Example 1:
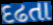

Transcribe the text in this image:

દઢતા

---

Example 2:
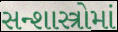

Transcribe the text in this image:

સન્શાસ્ત્રોમાં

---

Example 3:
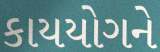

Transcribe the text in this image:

કાયયોગને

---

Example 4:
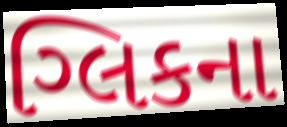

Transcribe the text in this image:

ગ્લિકના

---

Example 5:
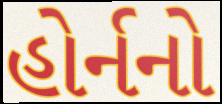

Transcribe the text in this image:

હોર્નનો